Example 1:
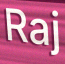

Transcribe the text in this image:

Raj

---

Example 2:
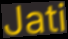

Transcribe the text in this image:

Jati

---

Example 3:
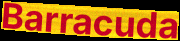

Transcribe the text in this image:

Barracuda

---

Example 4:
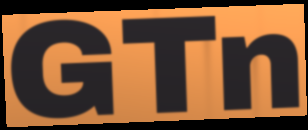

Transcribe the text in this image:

GTn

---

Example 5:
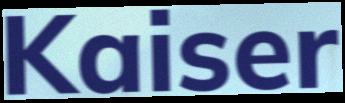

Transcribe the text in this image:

Kaiser